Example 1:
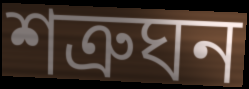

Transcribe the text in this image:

শত্ৰুঘন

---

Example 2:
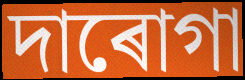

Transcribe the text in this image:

দাৰোগা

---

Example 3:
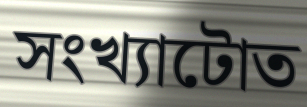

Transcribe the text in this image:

সংখ্যাটোত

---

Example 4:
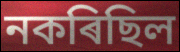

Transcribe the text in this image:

নকৰিছিল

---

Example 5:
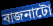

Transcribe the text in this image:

বাজনাটো